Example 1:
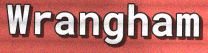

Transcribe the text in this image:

Wrangham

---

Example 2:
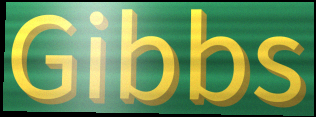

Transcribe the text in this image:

Gibbs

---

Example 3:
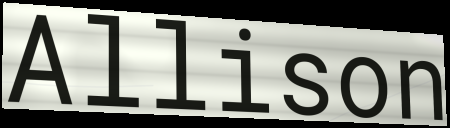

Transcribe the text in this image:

Allison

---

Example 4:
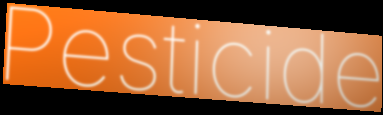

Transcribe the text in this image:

Pesticide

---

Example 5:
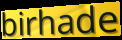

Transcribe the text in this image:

birhade